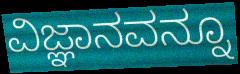
ವಿಜ್ಞಾನವನ್ನೂ